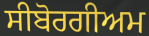
ਸੀਬੋਰਗੀਅਮ